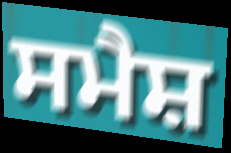
ਸਮੈਸ਼